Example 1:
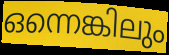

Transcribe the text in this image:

ഒന്നെങ്കിലും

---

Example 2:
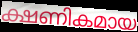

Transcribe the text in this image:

ക്ഷണികമായ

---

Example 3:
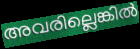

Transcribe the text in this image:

അവരില്ലെങ്കിൽ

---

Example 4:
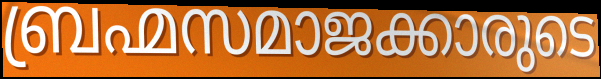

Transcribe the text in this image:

ബ്രഹ്മസമാജക്കാരുടെ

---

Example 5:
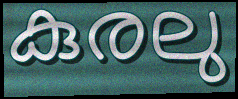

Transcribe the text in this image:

കുരലു